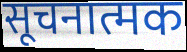
सूचनात्मक